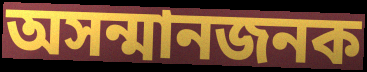
অসন্মানজনক